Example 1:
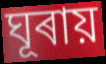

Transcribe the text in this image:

ঘূৰায়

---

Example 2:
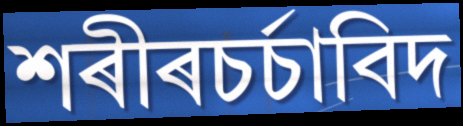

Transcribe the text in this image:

শৰীৰচৰ্চাবিদ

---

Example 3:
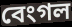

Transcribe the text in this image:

বেংগল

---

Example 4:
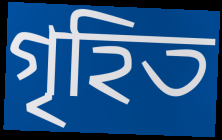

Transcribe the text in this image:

গৃহিত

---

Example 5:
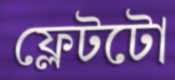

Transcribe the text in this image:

ফ্লেটটো